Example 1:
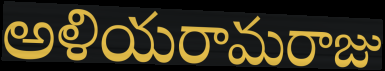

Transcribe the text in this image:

అళియరామరాజు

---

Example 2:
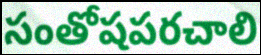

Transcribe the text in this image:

సంతోషపరచాలి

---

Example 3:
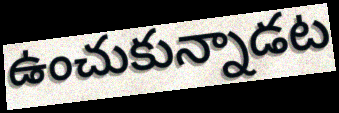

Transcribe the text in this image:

ఉంచుకున్నాడట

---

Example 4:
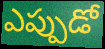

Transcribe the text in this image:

ఎప్పుడో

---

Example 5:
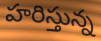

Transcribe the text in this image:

హరిస్తున్న